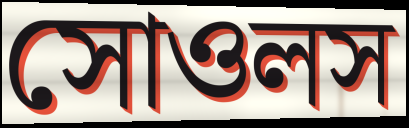
সোওলস